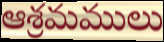
ఆశ్రమములు